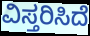
ವಿಸ್ತರಿಸಿದೆ